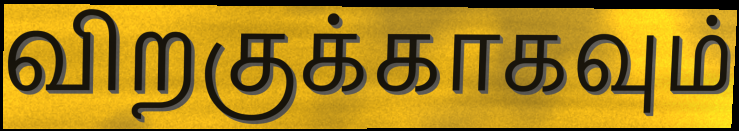
விறகுக்காகவும்